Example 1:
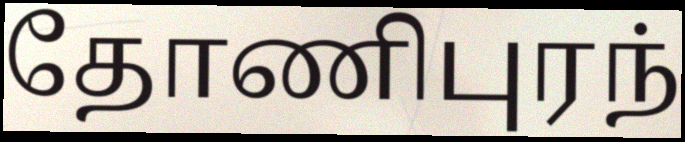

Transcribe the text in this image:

தோணிபுரந்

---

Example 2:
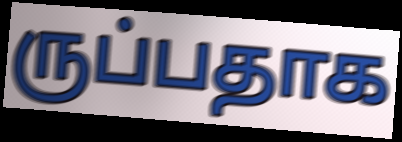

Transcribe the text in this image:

ருப்பதாக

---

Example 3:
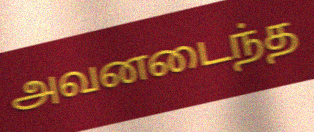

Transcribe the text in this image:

அவனடைந்த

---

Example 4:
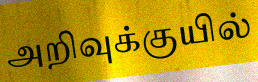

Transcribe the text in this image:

அறிவுக்குயில்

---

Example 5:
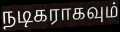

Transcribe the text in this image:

நடிகராகவும்